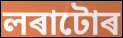
লৰাটোৰ